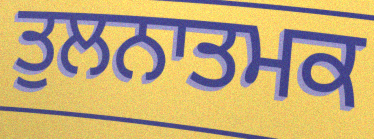
ਤੁਲਨਾਤਮਕ